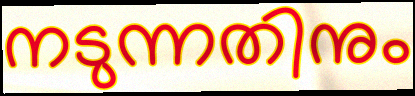
നടുന്നതിനും